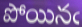
పోయినఁ